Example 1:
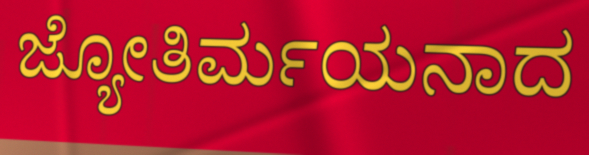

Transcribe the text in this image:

ಜ್ಯೋತಿರ್ಮಯನಾದ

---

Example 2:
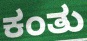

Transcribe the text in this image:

ಕಂತು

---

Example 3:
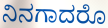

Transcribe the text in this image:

ನಿನಗಾದರೊ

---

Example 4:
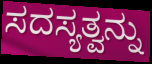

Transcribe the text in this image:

ಸದಸ್ಯತ್ವನ್ನು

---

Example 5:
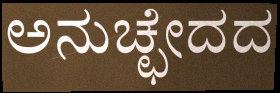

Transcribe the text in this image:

ಅನುಚ್ಛೇದದ